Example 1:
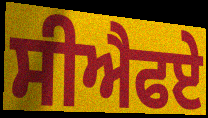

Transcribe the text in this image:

ਸੀਐਫਏ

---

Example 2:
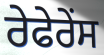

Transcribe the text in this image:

ਰੇਫੇਰੇਂਸ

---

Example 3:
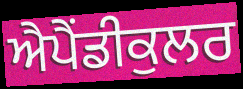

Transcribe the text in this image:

ਐਪੈਂਡੀਕੁਲਰ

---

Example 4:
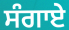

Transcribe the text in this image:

ਸੰਗਾਏ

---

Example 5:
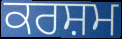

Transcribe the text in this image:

ਕਰਸ਼ਮ